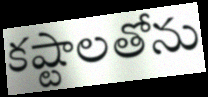
కష్టాలతోను